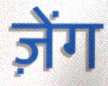
ज़ेंग